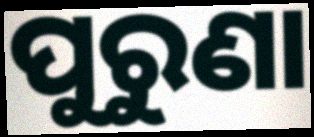
ପୁରୁଣା